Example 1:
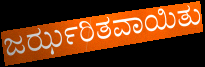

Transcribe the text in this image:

ಜರ್ಝರಿತವಾಯಿತು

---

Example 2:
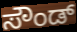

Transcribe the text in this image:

ಸೌಂಡ್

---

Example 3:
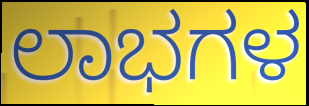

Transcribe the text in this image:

ಲಾಭಗಳ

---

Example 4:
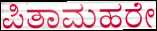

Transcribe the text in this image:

ಪಿತಾಮಹರೇ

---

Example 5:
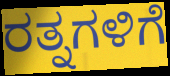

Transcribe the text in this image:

ರತ್ನಗಳಿಗೆ